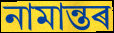
নামান্তৰ